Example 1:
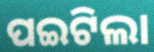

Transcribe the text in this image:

ପଇଟିଲା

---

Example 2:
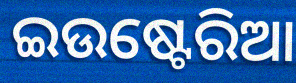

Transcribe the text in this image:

ଇଉଷ୍ଟେରିଆ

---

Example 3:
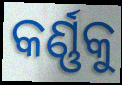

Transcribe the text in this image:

କର୍ଣ୍ଣକୁ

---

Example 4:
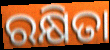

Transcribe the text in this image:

ରକ୍ଷିତା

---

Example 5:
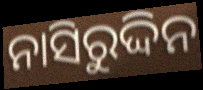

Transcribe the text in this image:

ନାସିରୁଦ୍ଦିନ